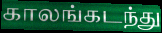
காலங்கடந்து